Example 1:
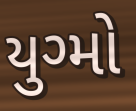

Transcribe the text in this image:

યુગ્મો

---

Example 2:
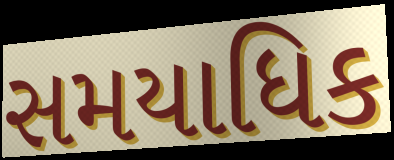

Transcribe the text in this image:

સમયાધિક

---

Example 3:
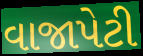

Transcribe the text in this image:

વાજાપેટી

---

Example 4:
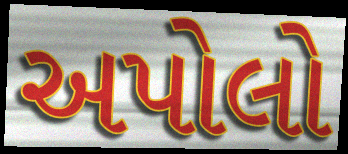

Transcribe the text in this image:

અપોલો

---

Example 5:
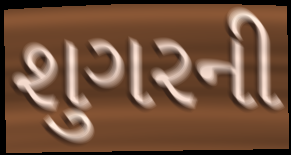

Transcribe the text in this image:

શુગરની